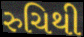
રુચિથી